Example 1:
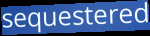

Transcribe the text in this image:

sequestered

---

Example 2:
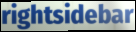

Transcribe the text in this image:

rightsidebar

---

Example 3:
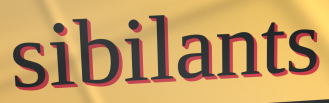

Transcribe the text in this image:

sibilants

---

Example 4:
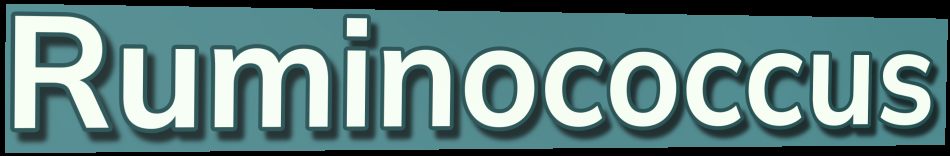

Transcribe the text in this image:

Ruminococcus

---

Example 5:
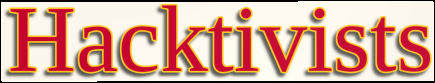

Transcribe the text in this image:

Hacktivists